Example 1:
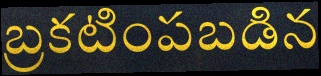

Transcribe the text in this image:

బ్రకటింపబడిన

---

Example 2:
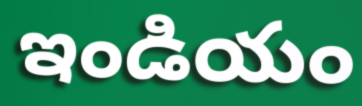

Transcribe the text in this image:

ఇండియం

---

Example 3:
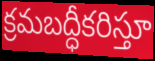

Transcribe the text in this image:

క్రమబద్ధీకరిస్తూ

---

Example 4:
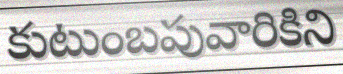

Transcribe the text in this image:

కుటుంబపువారికిని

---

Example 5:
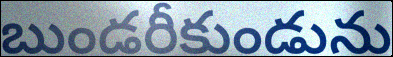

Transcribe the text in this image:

బుండరీకుండును